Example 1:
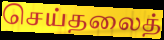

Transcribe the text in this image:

செய்தலைத்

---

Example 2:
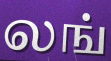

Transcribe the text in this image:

லங்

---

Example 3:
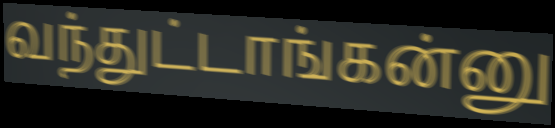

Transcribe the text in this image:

வந்துட்டாங்கன்னு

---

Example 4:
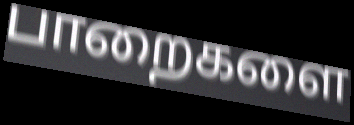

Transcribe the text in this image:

பாறைகளை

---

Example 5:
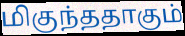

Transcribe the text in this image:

மிகுந்ததாகும்